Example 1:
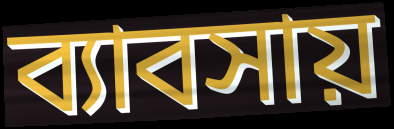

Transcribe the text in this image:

ব্যাবসায়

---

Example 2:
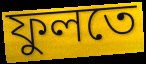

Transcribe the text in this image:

ফুলতে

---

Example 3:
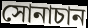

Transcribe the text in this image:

সোনাচান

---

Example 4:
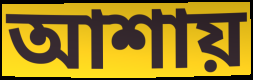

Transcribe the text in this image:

আশায়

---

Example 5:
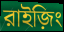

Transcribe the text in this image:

রাইজ়িং